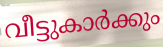
വീട്ടുകാർക്കും